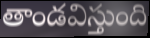
తాండవిస్తుంది